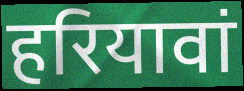
हरियावां